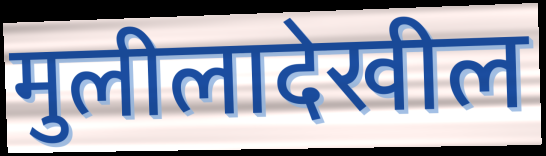
मुलीलादेखील